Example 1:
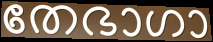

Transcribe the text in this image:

തേഭാഗാ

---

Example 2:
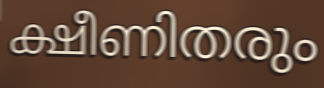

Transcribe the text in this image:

ക്ഷീണിതരും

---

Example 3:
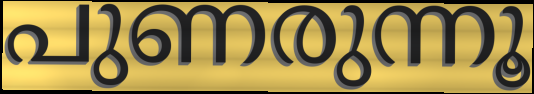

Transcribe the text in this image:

പുണരുന്നൂ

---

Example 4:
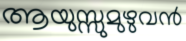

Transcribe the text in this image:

ആയുസ്സുമുഴുവൻ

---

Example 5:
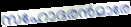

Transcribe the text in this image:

സഹോദരൻമാരേ